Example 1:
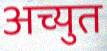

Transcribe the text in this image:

अच्‍युत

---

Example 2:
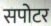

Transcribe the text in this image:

सपोटर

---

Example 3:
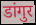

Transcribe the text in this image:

डांगुर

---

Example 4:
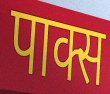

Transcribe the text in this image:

पाक्स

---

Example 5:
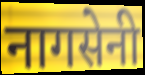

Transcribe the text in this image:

नागसेनी